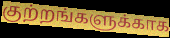
குற்றங்களுக்காக